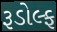
રૂડોલ્ફ